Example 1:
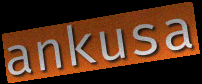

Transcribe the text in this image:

ankusa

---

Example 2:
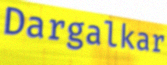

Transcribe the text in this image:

Dargalkar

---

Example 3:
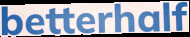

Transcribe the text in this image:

betterhalf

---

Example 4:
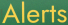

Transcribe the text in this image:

Alerts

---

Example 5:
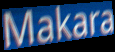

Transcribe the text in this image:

Makara